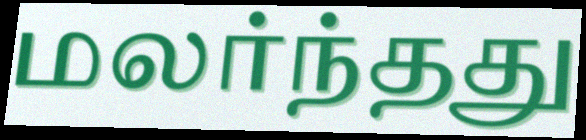
மலர்ந்தது